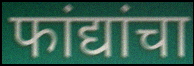
फांद्यांचा